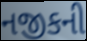
નજીકની